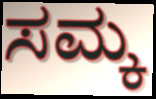
ಸಮ್ಕ